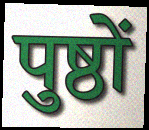
पुष्ठों